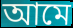
আমে